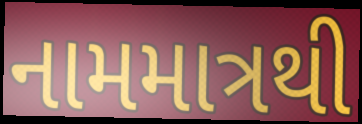
નામમાત્રથી